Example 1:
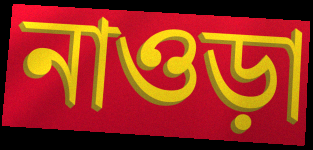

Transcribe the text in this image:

নাওড়া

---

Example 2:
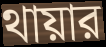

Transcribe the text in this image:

থায়ার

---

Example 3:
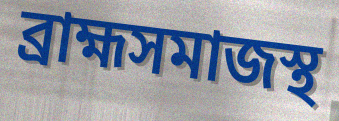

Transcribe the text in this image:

ব্রাহ্মসমাজস্থ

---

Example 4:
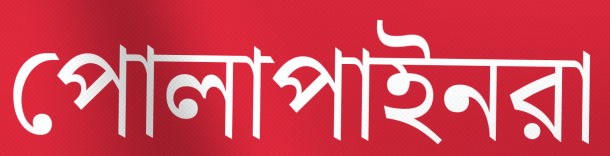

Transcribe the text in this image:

পোলাপাইনরা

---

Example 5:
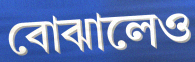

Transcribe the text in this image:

বোঝালেও